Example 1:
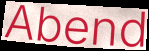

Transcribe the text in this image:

Abend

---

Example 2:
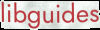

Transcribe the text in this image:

libguides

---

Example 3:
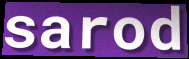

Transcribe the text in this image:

sarod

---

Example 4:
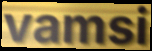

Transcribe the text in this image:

vamsi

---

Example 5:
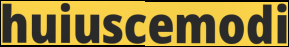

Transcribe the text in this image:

huiuscemodi